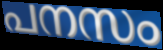
പനസം